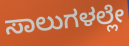
ಸಾಲುಗಳಲ್ಲೇ